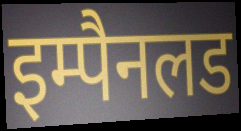
इम्पैनलड